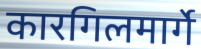
कारगिलमार्गे